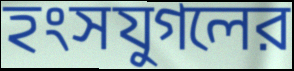
হংসযুগলের